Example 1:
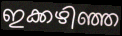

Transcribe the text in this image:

ഇക്കഴിഞ്ഞ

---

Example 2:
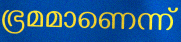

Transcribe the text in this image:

ഭ്രമമാണെന്ന്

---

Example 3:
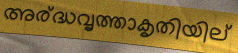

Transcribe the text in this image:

അര്ദ്ധവൃത്താകൃതിയില്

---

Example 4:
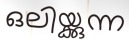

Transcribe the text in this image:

ഒലിയ്ക്കുന്ന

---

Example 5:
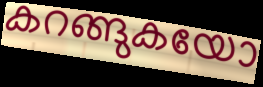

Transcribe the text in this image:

കറങ്ങുകയോ